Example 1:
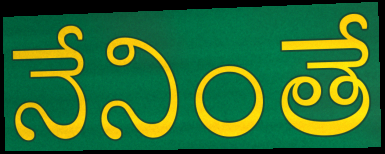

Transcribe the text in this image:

నేనింతే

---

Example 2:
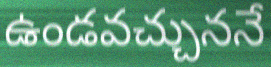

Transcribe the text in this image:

ఉండవచ్చుననే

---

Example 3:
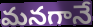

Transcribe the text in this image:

మనగానే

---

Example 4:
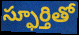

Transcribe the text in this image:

స్ఫూర్తితో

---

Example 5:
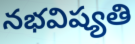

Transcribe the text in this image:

నభవిష్యతి